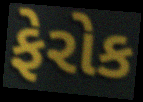
ફેરોક